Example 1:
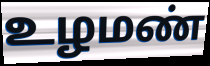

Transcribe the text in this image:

உழமண்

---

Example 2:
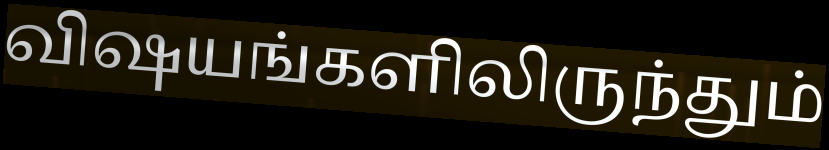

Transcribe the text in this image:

விஷயங்களிலிருந்தும்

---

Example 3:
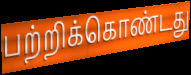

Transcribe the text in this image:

பற்றிக்கொண்டது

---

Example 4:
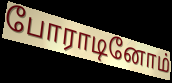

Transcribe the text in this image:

போராடினோம்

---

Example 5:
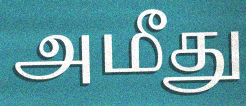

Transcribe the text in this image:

அமீது